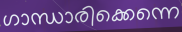
ഗാന്ധാരിക്കെന്നെ